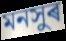
মনসুৰ